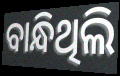
ବାନ୍ଧିଥିଲି